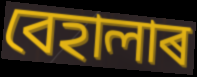
বেহালাৰ